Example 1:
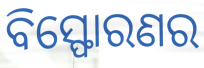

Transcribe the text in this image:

ବିସ୍ଫୋରଣର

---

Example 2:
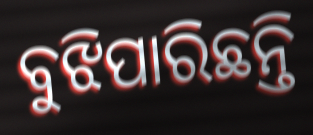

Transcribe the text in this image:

ବୁଝିପାରିଛନ୍ତି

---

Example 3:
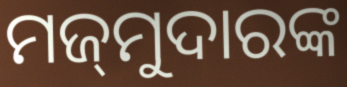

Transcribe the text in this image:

ମଜ୍‍ମୁଦାରଙ୍କ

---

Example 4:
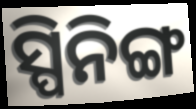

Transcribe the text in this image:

ସ୍ପିନିଙ୍ଗ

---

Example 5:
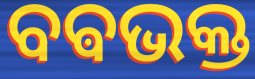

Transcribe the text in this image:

ବଵଭକ୍ତ